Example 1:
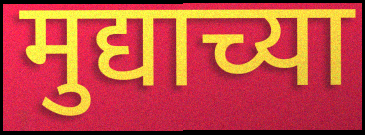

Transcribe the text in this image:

मुद्याच्या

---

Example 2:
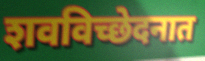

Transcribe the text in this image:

शवविच्छेदनात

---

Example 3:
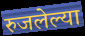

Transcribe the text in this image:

रुजलेल्या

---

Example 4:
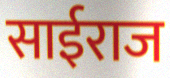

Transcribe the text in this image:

साईराज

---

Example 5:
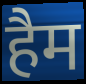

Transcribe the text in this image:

हैम